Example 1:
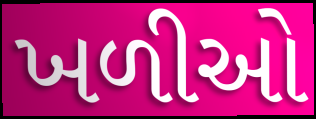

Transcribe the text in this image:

ખળીઓ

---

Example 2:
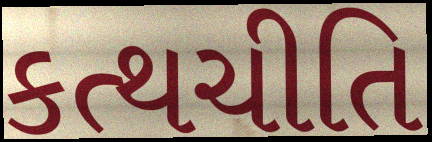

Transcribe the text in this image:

કત્થચીતિ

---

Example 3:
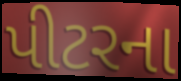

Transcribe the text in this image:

પીટરના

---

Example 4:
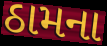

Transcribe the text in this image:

ઠામના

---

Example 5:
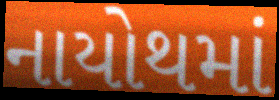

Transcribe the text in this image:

નાયોથમાં